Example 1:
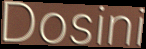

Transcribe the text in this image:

Dosini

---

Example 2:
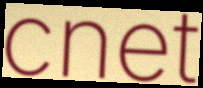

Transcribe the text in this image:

cnet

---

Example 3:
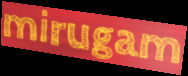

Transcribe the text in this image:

mirugam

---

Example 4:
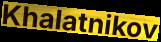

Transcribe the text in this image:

Khalatnikov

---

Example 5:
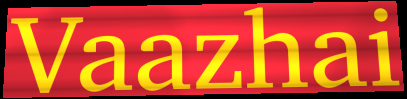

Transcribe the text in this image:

Vaazhai